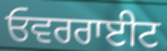
ਓਵਰਰਾਈਟ